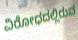
ವಿರೋಧದಲ್ಲಿರುವ